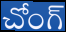
చోంగ్